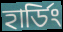
হার্ডিং